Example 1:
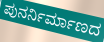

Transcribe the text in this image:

ಪುನರ್ನಿರ್ಮಾಣದ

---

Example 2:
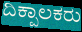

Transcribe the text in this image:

ದಿಕ್ಪಾಲಕರು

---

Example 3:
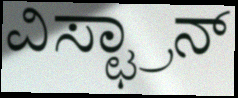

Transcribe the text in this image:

ವಿಸ್ಟ್ರಾನ್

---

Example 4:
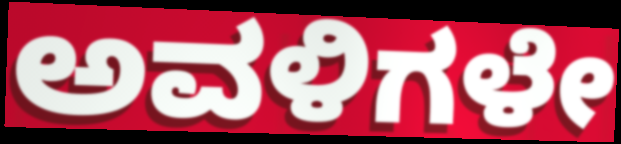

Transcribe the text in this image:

ಅವಳಿಗಳೇ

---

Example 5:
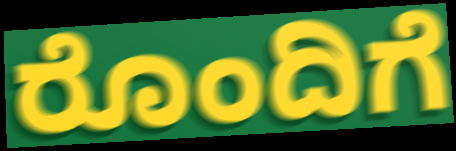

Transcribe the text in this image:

ರೊಂದಿಗೆ